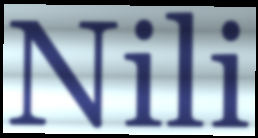
Nili